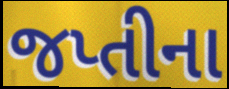
જપ્તીના